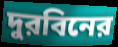
দুরবিনের